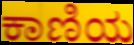
ಕಾಣಿಯ